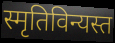
स्मृतिविन्यस्त